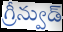
గ్రీన్వుడ్